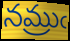
నమ్రుఁ